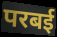
परबई